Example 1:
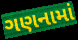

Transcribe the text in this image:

ગણનામાં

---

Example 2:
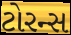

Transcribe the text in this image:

ટોરન્સ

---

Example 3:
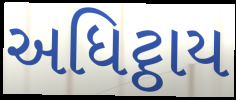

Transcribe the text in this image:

અધિટ્ઠાય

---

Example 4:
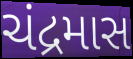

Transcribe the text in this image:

ચંદ્રમાસ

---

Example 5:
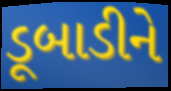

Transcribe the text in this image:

ડૂબાડીને